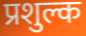
प्रशुल्क